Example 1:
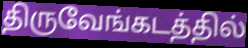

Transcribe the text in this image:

திருவேங்கடத்தில்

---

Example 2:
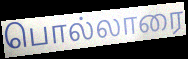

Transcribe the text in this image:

பொல்லாரை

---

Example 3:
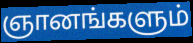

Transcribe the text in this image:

ஞானங்களும்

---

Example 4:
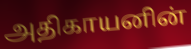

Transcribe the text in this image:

அதிகாயனின்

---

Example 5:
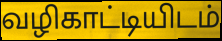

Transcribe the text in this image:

வழிகாட்டியிடம்